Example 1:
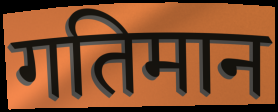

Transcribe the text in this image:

गतिमान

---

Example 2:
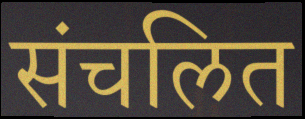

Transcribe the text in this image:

संचलित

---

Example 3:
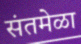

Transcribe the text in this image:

संतमेळा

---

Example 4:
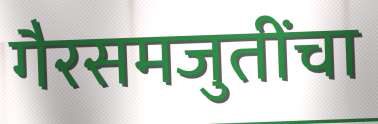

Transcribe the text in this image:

गैरसमजुतींचा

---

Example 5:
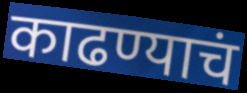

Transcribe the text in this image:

काढण्याचं